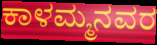
ಕಾಳಮ್ಮನವರ